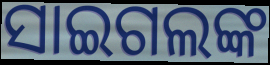
ସାଇଗଲଙ୍କ